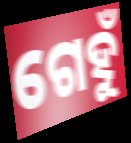
ଗେହୁଁ